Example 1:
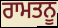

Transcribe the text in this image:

ਰਾਮਤਨੂ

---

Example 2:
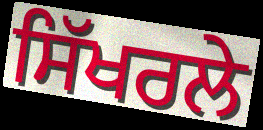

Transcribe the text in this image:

ਸਿੱਖਰਲੇ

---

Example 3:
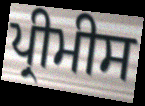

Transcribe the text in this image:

ਪ੍ਰੀਮੀਸ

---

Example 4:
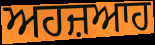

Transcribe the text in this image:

ਅਹਜ਼ਆਹ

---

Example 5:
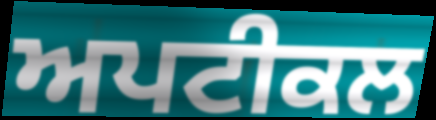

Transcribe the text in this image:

ਅਪਟੀਕਲ